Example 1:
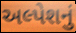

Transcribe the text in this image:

અલ્પેશનું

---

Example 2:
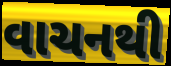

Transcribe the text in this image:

વાચનથી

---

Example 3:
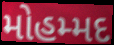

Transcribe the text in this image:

મોહમ્મદ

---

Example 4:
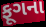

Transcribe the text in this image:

ફૂગના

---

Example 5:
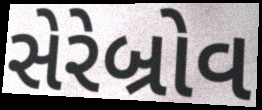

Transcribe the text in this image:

સેરેબ્રોવ